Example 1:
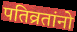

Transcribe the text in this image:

पतिव्रतांनो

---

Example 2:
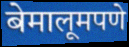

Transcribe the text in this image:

बेमालूमपणे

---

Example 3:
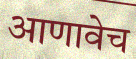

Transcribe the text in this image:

आणावेच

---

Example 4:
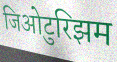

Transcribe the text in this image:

जिओटुरिझम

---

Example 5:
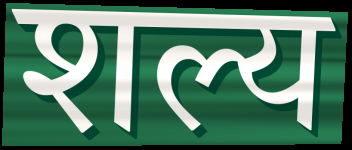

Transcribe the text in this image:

शल्य